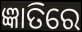
ଜ୍ଞାତିରେ